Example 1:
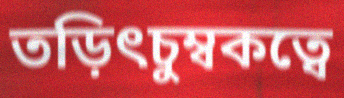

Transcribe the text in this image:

তড়িৎচুম্বকত্বে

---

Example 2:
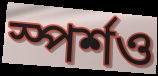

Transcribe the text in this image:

স্পর্শও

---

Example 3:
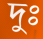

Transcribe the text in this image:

দুঃ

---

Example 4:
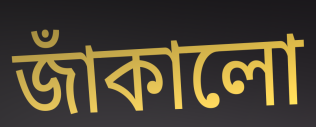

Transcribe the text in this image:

জাঁকালো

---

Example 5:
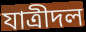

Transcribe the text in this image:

যাত্রীদল